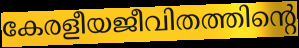
കേരളീയജീവിതത്തിന്റെ